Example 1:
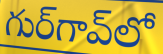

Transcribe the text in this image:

గుర్‌గావ్‌లో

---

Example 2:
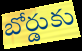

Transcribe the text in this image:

బోర్డుకు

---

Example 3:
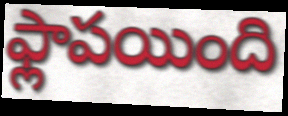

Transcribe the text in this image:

ఫ్లాపయింది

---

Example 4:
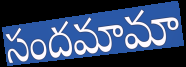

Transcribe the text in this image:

సందమామా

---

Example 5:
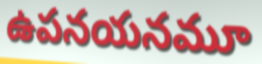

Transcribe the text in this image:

ఉపనయనమూ